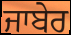
ਜਾਬੇਰ